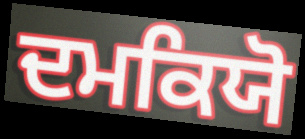
ਦਮਕਿਯੋ